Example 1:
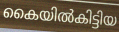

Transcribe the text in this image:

കൈയിൽകിട്ടിയ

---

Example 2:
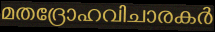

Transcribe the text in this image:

മതദ്രോഹവിചാരകർ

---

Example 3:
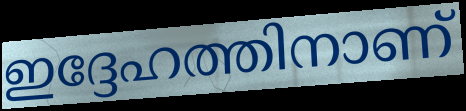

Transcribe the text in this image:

ഇദ്ദേഹത്തിനാണ്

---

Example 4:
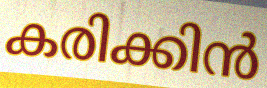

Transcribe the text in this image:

കരിക്കിൻ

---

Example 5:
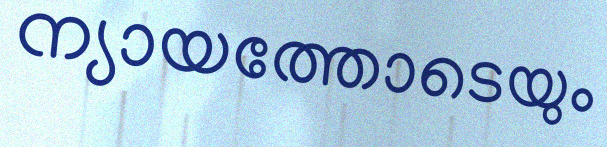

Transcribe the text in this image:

ന്യായത്തോടെയും